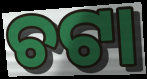
ଚଟା